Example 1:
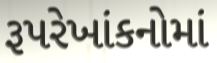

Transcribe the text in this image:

રૂપરેખાંકનોમાં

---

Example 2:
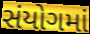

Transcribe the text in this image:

સંયોગમાં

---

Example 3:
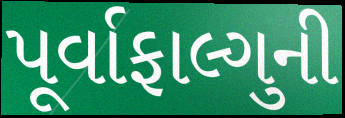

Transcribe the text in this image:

પૂર્વાફાલ્ગુની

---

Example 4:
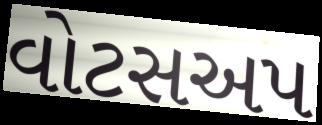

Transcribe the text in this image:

વોટસઅપ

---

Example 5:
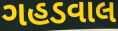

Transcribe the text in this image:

ગહડવાલ